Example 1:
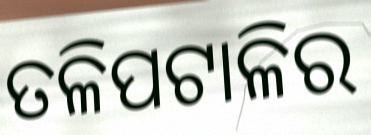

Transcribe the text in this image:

ତଳିପଟାଳିର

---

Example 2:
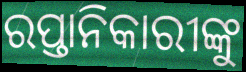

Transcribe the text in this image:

ରପ୍ତାନିକାରୀଙ୍କୁ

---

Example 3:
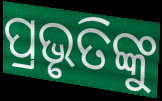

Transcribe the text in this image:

ପ୍ରଭୃତିଙ୍କୁ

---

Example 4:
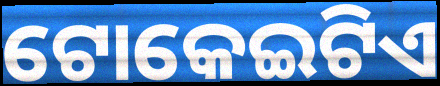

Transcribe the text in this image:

ଟୋକେଇଟିଏ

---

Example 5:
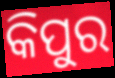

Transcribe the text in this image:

କିପୁର